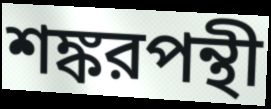
শঙ্করপন্থী